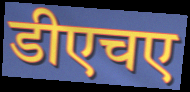
डीएचए